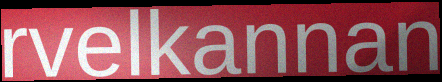
rvelkannan